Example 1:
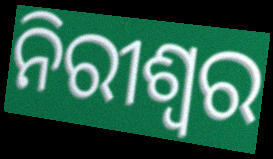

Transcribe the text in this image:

ନିରୀଶ୍ୱର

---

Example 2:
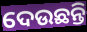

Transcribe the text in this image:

ଦେଉଛନ୍ତି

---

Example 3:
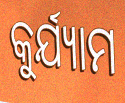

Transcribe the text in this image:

କୁର୍ଯ୍ୟାମ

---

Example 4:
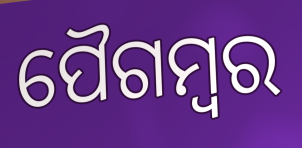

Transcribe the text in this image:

ପୈଗମ୍ବର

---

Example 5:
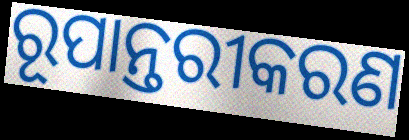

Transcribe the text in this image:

ରୂପାନ୍ତରୀକରଣ